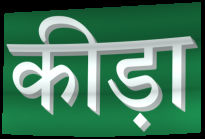
कीड़ा